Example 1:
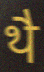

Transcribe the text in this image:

थै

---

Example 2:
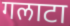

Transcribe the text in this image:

गलाटा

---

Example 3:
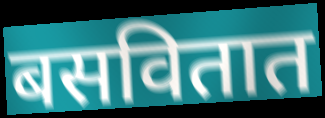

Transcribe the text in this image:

बसवितात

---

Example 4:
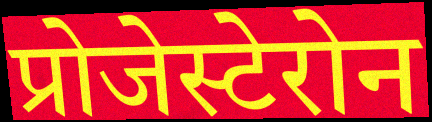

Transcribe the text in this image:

प्रोजेस्टेरोन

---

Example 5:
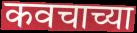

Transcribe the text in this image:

कवचाच्या